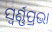
ସ୍ୱର୍ଣ୍ଣପ୍ରଭା